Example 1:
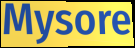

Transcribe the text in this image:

Mysore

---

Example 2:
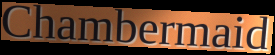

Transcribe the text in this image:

Chambermaid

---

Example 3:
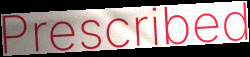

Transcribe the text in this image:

Prescribed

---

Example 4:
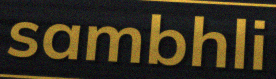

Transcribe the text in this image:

sambhli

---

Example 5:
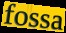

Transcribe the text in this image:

fossa